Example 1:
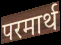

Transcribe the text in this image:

परमार्थ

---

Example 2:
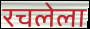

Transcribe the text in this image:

रचलेला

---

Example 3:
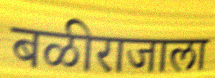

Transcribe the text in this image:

बळीराजाला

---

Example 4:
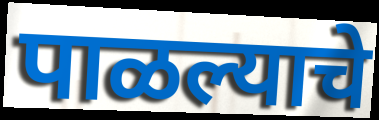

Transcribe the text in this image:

पाळल्याचे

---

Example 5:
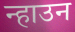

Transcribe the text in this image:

न्हाउन